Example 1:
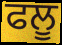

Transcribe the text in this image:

ਫਲੂ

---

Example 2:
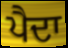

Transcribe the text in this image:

ਪੈਦਾ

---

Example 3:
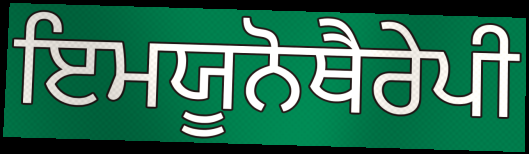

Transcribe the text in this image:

ਇਮਯੂਨੋਥੈਰੇਪੀ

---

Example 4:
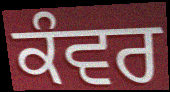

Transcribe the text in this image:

ਕੰਵਰ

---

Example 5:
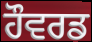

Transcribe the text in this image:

ਹੌਵਰਡ